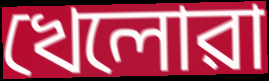
খেলোৱা